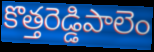
కొత్తరెడ్డిపాలెం